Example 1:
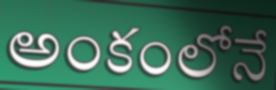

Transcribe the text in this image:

అంకంలోనే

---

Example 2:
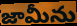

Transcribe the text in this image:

జామీను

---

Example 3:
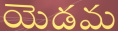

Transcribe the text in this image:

యెడమ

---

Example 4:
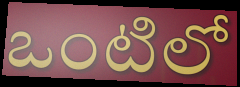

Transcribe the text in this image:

ఒంటిలో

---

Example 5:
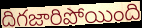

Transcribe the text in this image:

దిగజారిపోయింది